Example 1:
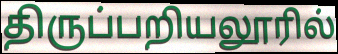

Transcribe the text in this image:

திருப்பறியலூரில்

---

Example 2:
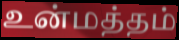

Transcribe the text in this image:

உன்மத்தம்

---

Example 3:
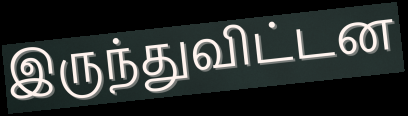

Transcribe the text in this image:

இருந்துவிட்டன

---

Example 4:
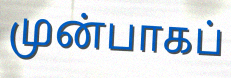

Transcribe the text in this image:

முன்பாகப்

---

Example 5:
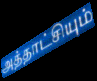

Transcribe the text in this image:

அத்தாட்சியும்